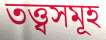
তত্ত্বসমূহ